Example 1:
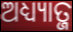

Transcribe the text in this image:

ଅଧ୍ୟ୍ୟାତ୍ଜ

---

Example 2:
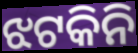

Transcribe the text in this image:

ଝଟକିନି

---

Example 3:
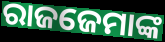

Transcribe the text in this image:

ରାଜଜେମାଙ୍କ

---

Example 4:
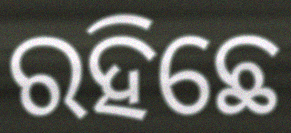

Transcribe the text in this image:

ରହିଛେ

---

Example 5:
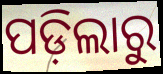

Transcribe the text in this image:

ପଡ଼ିଲାରୁ